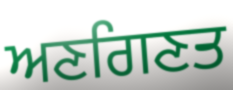
ਅਣਗਿਣਤ